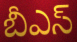
బీఎస్